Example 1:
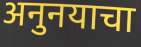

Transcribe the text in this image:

अनुनयाचा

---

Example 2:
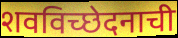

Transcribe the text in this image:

शवविच्छेदनाची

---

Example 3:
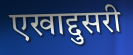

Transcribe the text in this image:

एखाद्दुसरी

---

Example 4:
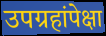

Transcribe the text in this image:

उपग्रहांपेक्षा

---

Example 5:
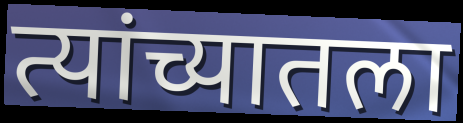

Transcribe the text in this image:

त्यांच्यातला